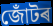
জোঁটৰ